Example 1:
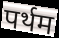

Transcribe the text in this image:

पर्थम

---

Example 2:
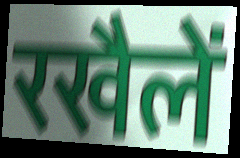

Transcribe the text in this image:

रखैलें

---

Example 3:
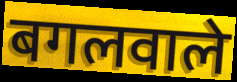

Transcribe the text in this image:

बगलवाले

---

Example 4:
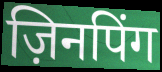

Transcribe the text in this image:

ज़िनपिंग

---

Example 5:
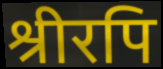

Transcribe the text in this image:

श्रीरपि